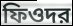
ফিওদর